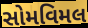
સોમવિમલ